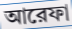
আরেফা